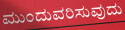
ಮುಂದುವರಿಸುವುದು